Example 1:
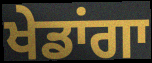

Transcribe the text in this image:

ਖੇਡਾਂਗਾ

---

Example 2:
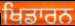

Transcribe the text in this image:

ਖਿਡਾਰਨ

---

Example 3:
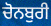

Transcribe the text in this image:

ਚੋਨਬੁਰੀ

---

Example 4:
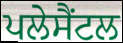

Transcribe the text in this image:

ਪਲੇਸੈਂਟਲ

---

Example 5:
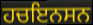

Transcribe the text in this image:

ਹਚਇਨਸਨ